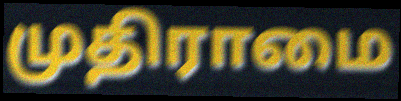
முதிராமை